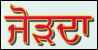
ਜੋੜਦਾ